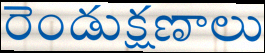
రెండుక్షణాలు